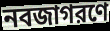
নবজাগরণে